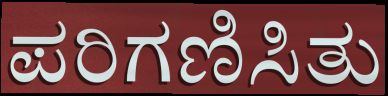
ಪರಿಗಣಿಸಿತು